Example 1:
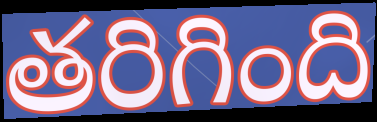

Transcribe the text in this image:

తరిగింది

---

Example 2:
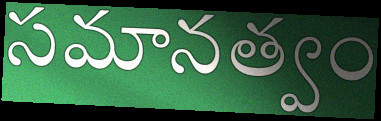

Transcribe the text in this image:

సమానత్వం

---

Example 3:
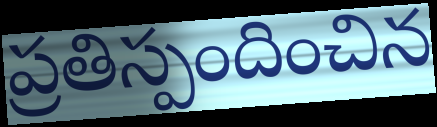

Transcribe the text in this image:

ప్రతిస్పందించిన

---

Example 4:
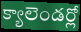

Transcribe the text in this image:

క్యాలెండర్లో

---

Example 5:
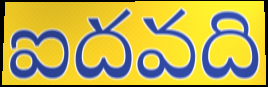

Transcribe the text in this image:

ఐదవది